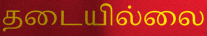
தடையில்லை